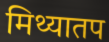
मिथ्यातप